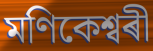
মণিকেশ্বৰী